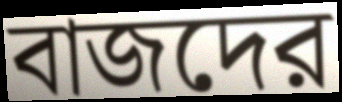
বাজদের